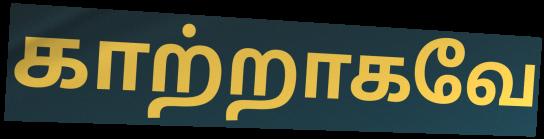
காற்றாகவே